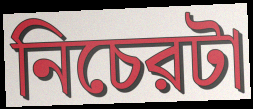
নিচেরটা